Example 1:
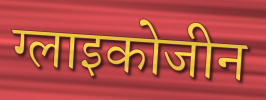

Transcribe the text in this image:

ग्लाइकोजीन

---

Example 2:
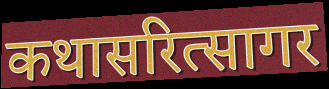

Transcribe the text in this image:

कथासरित्सागर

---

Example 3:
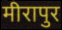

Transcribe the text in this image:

मीरापुर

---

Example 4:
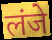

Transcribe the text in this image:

लंजे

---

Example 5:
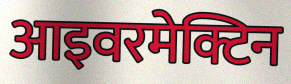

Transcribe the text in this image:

आइवरमेक्टिन